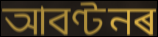
আবণ্টনৰ